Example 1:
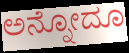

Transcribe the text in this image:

ಅನ್ನೋದೂ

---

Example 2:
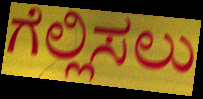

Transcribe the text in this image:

ಗೆಲ್ಲಿಸಲು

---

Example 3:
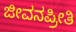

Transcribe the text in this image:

ಜೀವನಪ್ರೀತಿ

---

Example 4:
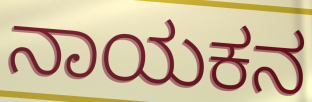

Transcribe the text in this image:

ನಾಯಕನ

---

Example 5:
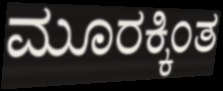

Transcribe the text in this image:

ಮೂರಕ್ಕಿಂತ